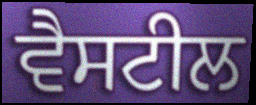
ਵੈਸਟੀਲ